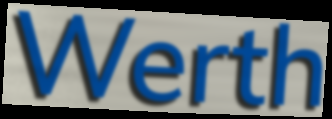
Werth